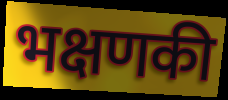
भक्षणकी